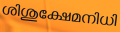
ശിശുക്ഷേമനിധി